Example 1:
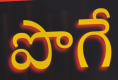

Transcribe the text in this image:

పొగే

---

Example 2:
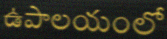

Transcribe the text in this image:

ఉపాలయంలో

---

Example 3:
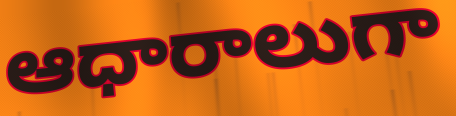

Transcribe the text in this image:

ఆధారాలుగా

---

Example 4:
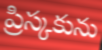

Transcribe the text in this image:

ప్రిస్కకును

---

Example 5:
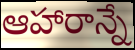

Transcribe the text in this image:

ఆహారాన్నే